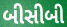
બીસીબી